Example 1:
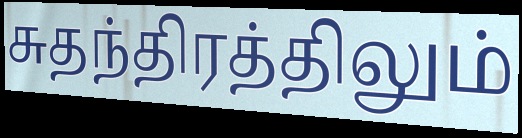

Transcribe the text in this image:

சுதந்திரத்திலும்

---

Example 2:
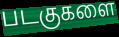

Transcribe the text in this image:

படகுகளை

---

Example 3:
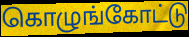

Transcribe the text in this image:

கொழுங்கோட்டு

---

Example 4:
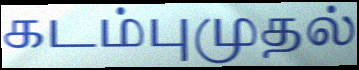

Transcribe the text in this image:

கடம்புமுதல்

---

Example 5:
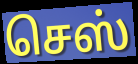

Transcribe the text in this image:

செஸ்